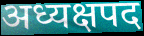
अध्यक्षपद